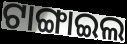
ଟାଙ୍ଗାଇଲ